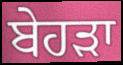
ਬੇਹੜਾ